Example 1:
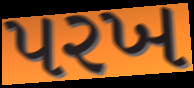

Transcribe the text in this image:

પરખ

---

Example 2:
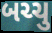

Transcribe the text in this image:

બચ્ચુ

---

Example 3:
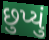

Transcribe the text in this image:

છુપ્યું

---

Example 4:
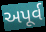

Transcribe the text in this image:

અપૂર્વ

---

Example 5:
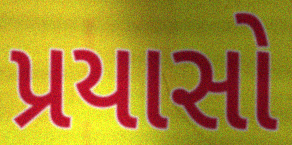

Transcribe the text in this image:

પ્રયાસો